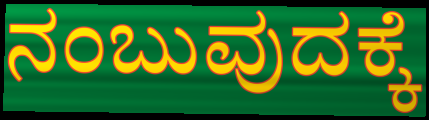
ನಂಬುವುದಕ್ಕೆ